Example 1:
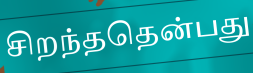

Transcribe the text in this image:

சிறந்ததென்பது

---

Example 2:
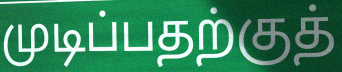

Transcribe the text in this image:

முடிப்பதற்குத்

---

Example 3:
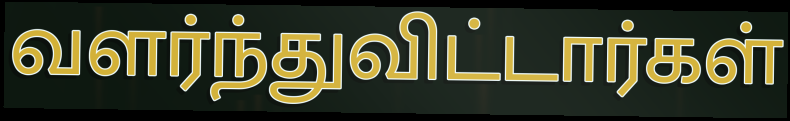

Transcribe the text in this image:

வளர்ந்துவிட்டார்கள்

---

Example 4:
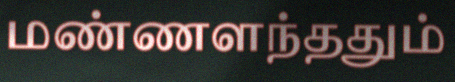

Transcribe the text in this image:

மண்ணளந்ததும்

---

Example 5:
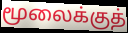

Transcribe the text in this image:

மூலைக்குத்